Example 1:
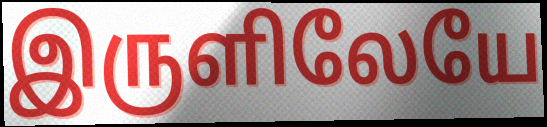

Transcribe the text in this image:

இருளிலேயே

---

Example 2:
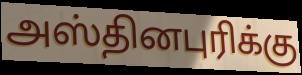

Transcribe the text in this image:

அஸ்தினபுரிக்கு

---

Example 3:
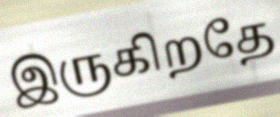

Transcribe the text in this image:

இருகிறதே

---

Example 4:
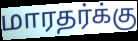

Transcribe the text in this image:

மாரதர்க்கு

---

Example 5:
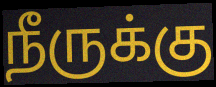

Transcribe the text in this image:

நீருக்கு